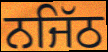
ਨਜਿੱਠ